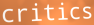
critics